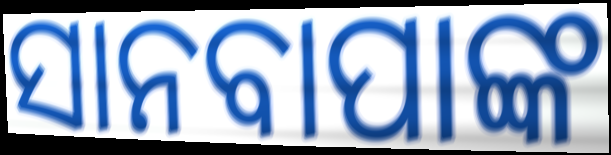
ସାନବାପାଙ୍କ